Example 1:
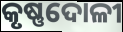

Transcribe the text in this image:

କୃଷ୍ଣଦୋଳୀ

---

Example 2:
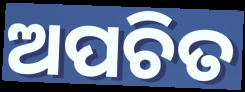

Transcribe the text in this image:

ଅପଚିତ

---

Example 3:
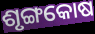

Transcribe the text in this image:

ଶୃଙ୍ଗକୋଷ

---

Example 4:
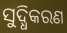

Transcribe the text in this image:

ସୁଦ୍ଧିକରଣ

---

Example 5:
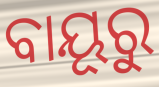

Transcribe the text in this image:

ବାୟୂରୁ